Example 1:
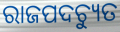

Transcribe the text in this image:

ରାଜପଦଚ୍ୟୁତ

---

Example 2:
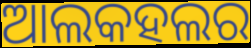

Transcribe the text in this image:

ଆଲକହଲର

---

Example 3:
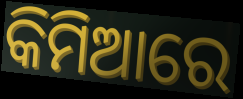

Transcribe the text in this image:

କିମିଆରେ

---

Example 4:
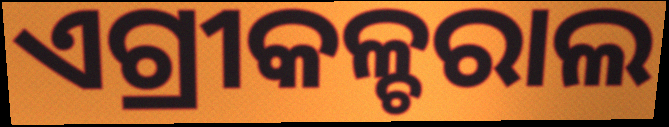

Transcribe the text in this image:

ଏଗ୍ରୀକଳ୍ଚରାଲ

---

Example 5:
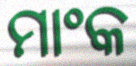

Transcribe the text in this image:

ମାଂକ